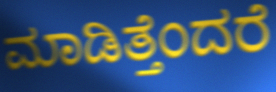
ಮಾಡಿತ್ತೆಂದರೆ